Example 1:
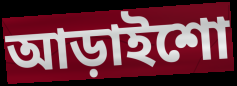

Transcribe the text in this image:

আড়াইশো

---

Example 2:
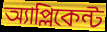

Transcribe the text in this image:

অ্যাপ্লিকেন্ট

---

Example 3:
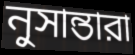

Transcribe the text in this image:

নুসান্তারা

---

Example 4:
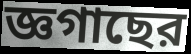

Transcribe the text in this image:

জ্ঞগাছের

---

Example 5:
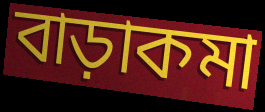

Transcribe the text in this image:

বাড়াকমা